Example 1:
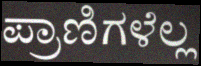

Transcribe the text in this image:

ಪ್ರಾಣಿಗಳೆಲ್ಲ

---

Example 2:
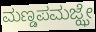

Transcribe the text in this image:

ಮಣ್ಡಪಮಜ್ಝೇ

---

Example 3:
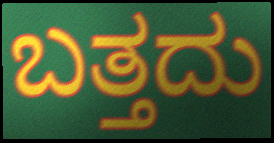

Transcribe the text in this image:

ಬತ್ತದು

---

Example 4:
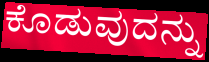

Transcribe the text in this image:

ಕೊಡುವುದನ್ನು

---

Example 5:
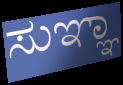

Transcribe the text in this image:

ಸುಞ್ಞಾ